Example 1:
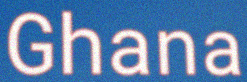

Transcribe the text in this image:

Ghana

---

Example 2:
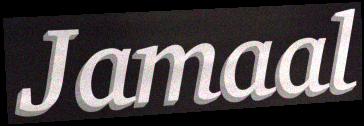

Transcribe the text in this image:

Jamaal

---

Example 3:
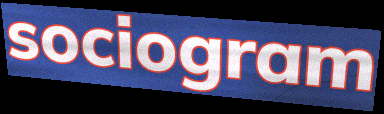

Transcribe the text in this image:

sociogram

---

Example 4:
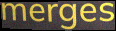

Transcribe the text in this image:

merges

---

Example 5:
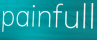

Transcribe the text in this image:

painfull